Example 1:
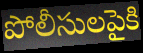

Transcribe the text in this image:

పోలీసులపైకి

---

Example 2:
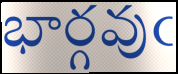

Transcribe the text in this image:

భార్గవుఁ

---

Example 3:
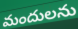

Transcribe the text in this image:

మందులను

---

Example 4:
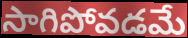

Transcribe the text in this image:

సాగిపోవడమే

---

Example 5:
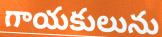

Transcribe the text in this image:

గాయకులును